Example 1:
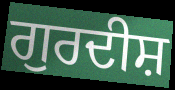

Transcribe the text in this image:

ਗੁਰਦੀਸ਼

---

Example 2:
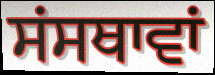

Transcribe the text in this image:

ਸਂਸਥਾਵਾਂ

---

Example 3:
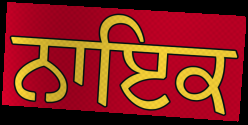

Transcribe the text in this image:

ਨਾਇਕ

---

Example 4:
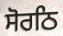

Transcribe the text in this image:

ਸੋਰਠਿ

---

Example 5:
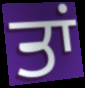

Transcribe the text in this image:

ਤਾਂ